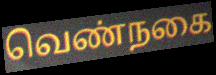
வெண்நகை